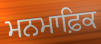
ਮਨਮਾਫ਼ਿਕ